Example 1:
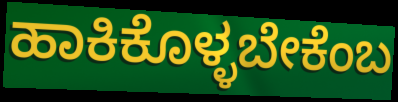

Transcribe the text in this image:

ಹಾಕಿಕೊಳ್ಳಬೇಕೆಂಬ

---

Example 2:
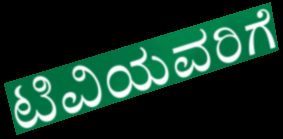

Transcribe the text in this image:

ಟಿವಿಯವರಿಗೆ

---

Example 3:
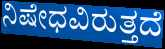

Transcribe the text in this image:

ನಿಷೇಧವಿರುತ್ತದೆ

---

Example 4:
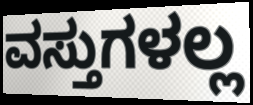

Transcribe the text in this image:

ವಸ್ತುಗಳಲ್ಲ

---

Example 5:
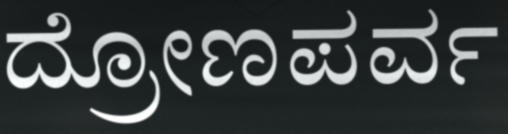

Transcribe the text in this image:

ದ್ರೋಣಪರ್ವ